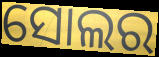
ସୋଲର